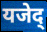
यजेद्